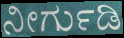
ನೀರ್ಗುಡಿ